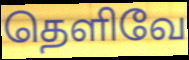
தெளிவே